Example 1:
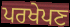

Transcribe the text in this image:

ਪਰਖੇਪਣ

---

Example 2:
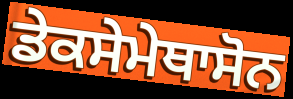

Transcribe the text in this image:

ਡੇਕਸੇਮੇਥਾਸੋਨ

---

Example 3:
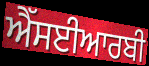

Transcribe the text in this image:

ਐੱਸਈਆਰਬੀ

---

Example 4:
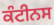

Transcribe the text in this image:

ਕੰਟੀਨਸ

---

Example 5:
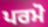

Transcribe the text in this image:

ਪਰਮੋ